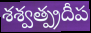
శశ్వత్ప్రదీప